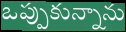
ఒప్పుకున్నాను